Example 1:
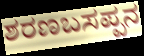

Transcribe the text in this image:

ಶರಣಬಸಪ್ಪನ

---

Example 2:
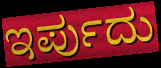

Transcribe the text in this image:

ಇರ್ಪುದು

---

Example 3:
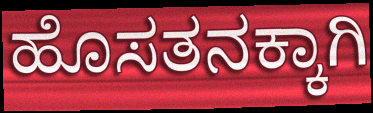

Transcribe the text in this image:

ಹೊಸತನಕ್ಕಾಗಿ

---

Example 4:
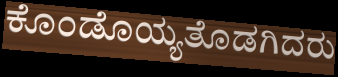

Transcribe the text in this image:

ಕೊಂಡೊಯ್ಯತೊಡಗಿದರು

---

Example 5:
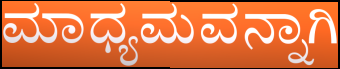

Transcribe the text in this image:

ಮಾಧ್ಯಮವನ್ನಾಗಿ